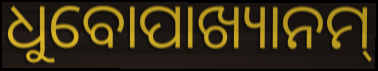
ଧୁବୋପାଖ୍ୟାନମ୍